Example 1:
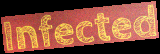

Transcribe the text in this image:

Infected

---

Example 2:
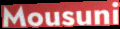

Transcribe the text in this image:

Mousuni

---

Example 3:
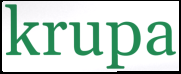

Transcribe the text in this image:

krupa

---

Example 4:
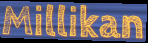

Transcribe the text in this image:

Millikan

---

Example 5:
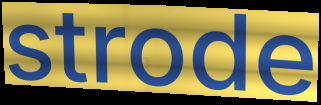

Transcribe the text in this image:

strode